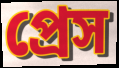
প্রেস